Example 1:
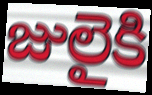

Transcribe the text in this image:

జులైకి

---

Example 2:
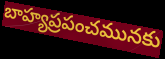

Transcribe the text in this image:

బాహ్యప్రపంచమునకు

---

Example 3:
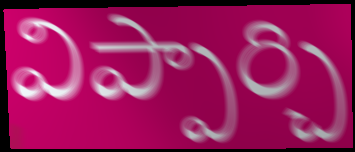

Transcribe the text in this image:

విప్పార్చి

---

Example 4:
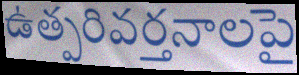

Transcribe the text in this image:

ఉత్పరివర్తనాలపై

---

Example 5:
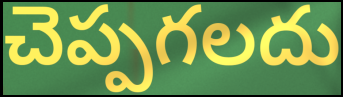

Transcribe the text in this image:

చెప్పగలదు